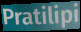
Pratilipi